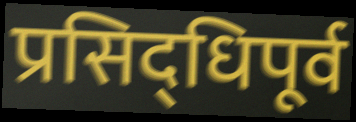
प्रसिद्धिपूर्व